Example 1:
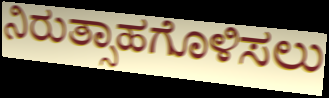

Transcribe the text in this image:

ನಿರುತ್ಸಾಹಗೊಳಿಸಲು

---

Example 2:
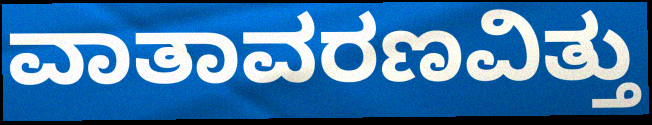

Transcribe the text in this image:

ವಾತಾವರಣವಿತ್ತು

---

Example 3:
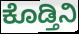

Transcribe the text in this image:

ಕೊಡ್ತಿನಿ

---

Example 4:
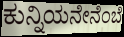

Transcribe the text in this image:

ಕುನ್ನಿಯನೇನೆಂಬೆ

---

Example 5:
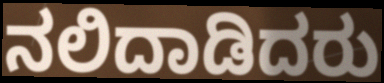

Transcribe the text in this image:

ನಲಿದಾಡಿದರು